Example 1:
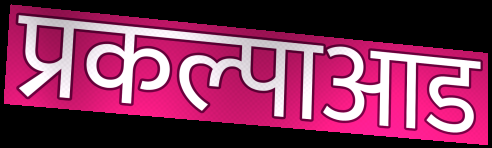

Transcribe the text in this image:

प्रकल्पाआड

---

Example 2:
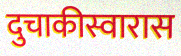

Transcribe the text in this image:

दुचाकीस्वारास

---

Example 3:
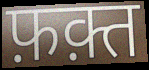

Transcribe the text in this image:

फ़क़्त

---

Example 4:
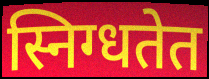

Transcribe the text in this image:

स्निग्धतेत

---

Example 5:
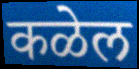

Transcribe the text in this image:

कळेल